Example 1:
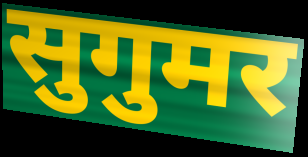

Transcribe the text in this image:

सुगुमर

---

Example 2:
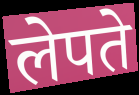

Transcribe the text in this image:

लेपते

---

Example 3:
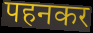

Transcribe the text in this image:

पहनकर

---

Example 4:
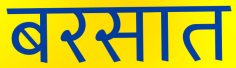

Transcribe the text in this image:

बरसात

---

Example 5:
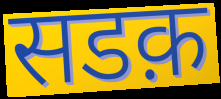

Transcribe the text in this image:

सडक़